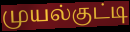
முயல்குட்டி